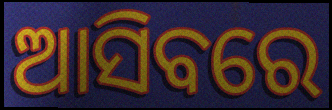
ଆସିବରେ